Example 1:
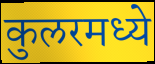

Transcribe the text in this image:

कुलरमध्ये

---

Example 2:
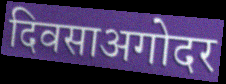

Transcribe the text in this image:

दिवसाअगोदर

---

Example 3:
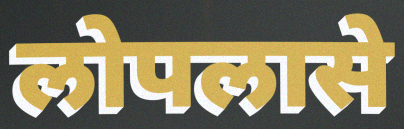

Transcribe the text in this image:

लोपलासे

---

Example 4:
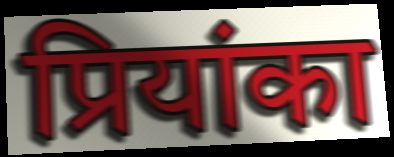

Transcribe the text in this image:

प्रियांका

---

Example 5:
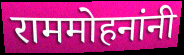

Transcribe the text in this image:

राममोहनांनी